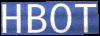
HBOT